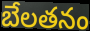
బేలతనం